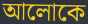
আলোকে